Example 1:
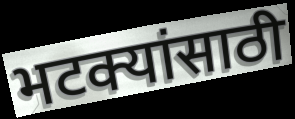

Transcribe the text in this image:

भटक्यांसाठी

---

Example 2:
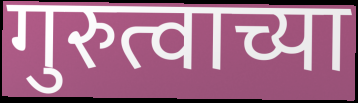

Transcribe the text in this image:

गुरुत्वाच्या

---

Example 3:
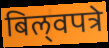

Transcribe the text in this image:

बिल्वपत्रे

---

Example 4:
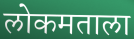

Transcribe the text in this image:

लोकमताला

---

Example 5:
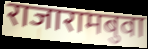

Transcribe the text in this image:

राजारामबुवा